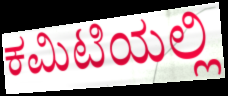
ಕಮಿಟಿಯಲ್ಲಿ